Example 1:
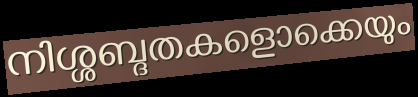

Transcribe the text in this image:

നിശ്ശബ്ദതകളൊക്കെയും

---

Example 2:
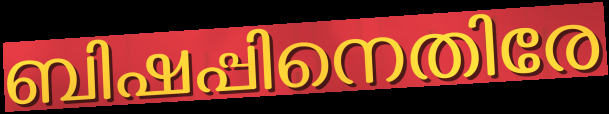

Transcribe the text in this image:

ബിഷപ്പിനെതിരേ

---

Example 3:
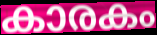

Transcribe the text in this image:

കാരകം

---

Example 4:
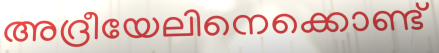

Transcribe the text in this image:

അദ്രീയേലിനെക്കൊണ്ട്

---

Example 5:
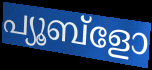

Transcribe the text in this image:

പ്യൂബ്ളോ